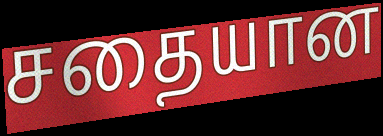
சதையான